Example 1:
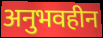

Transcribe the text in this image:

अनुभवहीन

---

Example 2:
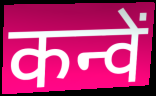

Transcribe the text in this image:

कन्वें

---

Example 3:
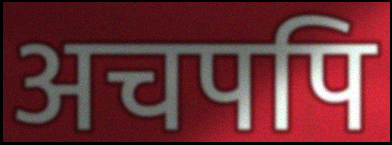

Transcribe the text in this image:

अचपपि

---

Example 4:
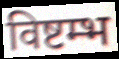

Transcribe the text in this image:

विष्टम्भ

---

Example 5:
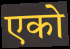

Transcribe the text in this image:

एको